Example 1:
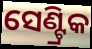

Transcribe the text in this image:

ସେଣ୍ଟ୍ରିକ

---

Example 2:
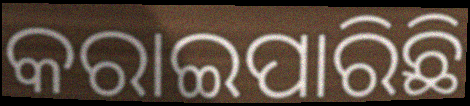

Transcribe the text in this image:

କରାଇପାରିଛି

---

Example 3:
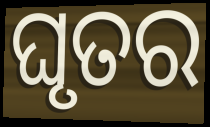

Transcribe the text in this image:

ଘୃତର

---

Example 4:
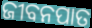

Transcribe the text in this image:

ଜୀବନପାତ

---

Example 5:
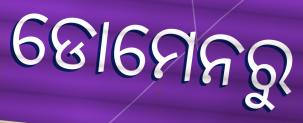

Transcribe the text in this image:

ଡୋମେନରୁ